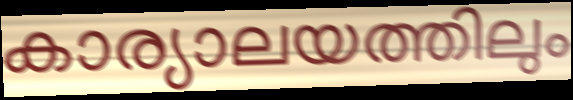
കാര്യാലയത്തിലും